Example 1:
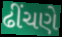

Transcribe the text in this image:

ઢીંચણે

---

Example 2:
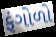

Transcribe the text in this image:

ફંગોળો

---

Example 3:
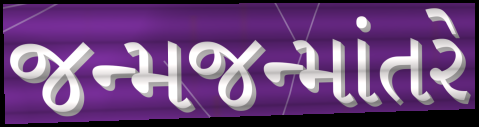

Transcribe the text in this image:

જન્મજન્માંતરે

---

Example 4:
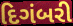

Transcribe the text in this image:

દિગંબરી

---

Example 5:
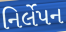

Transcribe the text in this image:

નિર્લેપન